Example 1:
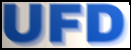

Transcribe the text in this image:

UFD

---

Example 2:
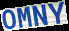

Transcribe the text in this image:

OMNY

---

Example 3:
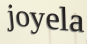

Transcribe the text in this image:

joyela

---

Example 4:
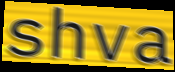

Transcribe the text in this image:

shva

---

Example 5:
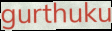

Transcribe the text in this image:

gurthuku